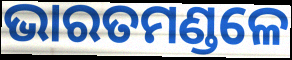
ଭାରତମଣ୍ଡଳେ